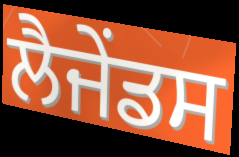
ਲੈਜੇਂਡਸ